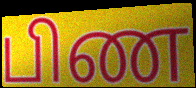
பிண